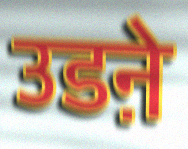
उडऩे